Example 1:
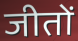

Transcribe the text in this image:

जीतों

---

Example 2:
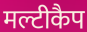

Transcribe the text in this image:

मल्‍टीकैप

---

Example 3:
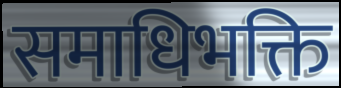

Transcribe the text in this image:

समाधिभक्ति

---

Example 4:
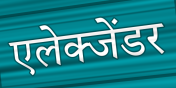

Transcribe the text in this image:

एलेक्‍जेंडर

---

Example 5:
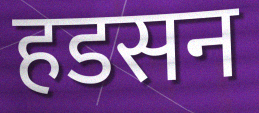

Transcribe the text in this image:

हडसन